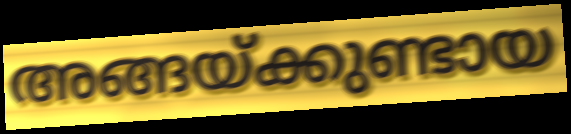
അങ്ങയ്ക്കുണ്ടായ